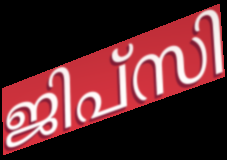
ജിപ്സി